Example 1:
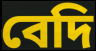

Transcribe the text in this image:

বেদি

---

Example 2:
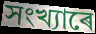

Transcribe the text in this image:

সংখ্যাৰে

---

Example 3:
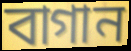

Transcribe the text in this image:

বাগান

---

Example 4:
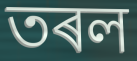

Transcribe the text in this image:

তৰল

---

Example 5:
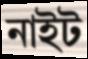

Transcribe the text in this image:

নাইট